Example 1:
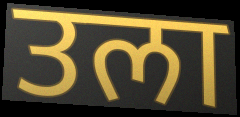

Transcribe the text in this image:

उला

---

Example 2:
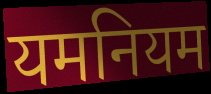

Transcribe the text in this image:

यमनियम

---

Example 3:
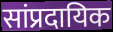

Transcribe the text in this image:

सांप्रदायिक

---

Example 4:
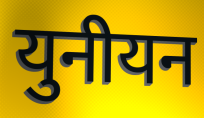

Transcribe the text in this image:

युनीयन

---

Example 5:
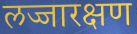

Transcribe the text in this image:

लज्जारक्षण